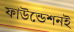
ফাউন্ডেশনই